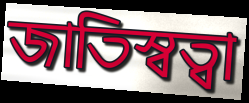
জাতিস্বত্বা